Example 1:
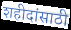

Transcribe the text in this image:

शहीदांसाठी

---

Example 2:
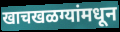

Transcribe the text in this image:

खाचखळग्यांमधून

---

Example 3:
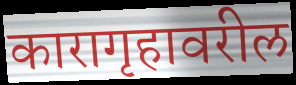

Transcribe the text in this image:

कारागृहावरील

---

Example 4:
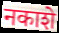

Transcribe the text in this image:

नकाशे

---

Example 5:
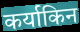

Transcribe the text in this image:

कर्याकिन